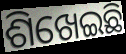
ଶିଖେଇଛି